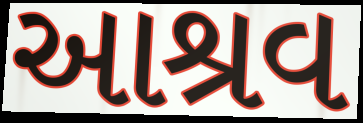
આશ્રવ